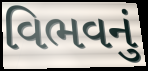
વિભવનું